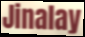
Jinalay